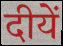
दीयें